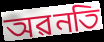
অৱনতি